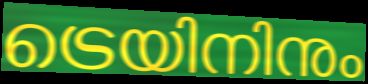
ട്രെയിനിനും